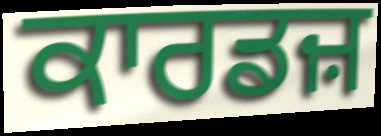
ਕਾਰਡਜ਼